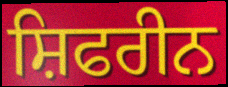
ਸ਼ਿਫਰੀਨ